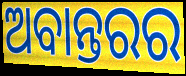
ଅବାନ୍ତରର